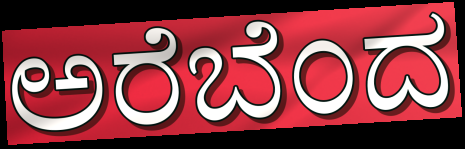
ಅರೆಬೆಂದ